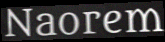
Naorem